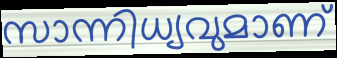
സാന്നിധ്യവുമാണ്